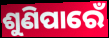
ଶୁଣିପାରେଁ